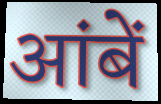
आंबें